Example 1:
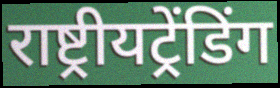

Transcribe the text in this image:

राष्ट्रीयट्रेंडिंग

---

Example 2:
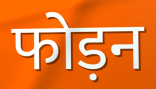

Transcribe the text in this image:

फोड़न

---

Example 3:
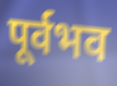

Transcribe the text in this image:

पूर्वभव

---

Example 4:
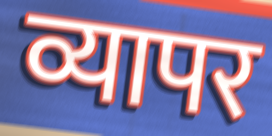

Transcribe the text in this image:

व्यापर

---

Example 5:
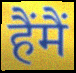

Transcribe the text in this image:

हैंमैं